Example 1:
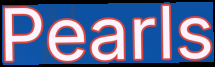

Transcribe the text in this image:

Pearls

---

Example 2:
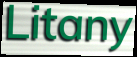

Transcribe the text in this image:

Litany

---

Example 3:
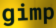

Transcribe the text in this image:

gimp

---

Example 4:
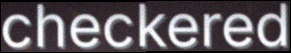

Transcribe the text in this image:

checkered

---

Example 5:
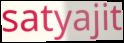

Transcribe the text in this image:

satyajit